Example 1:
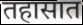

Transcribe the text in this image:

तहासात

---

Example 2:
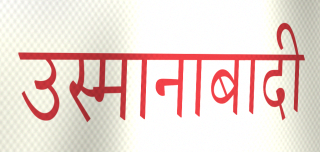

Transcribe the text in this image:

उस्मानाबादी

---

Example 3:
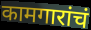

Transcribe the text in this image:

कामगारांचं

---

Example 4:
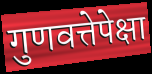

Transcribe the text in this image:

गुणवत्तेपेक्षा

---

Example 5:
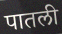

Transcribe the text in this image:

पातली